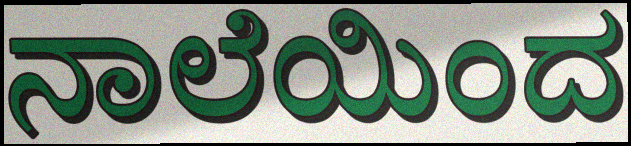
ನಾಲೆಯಿಂದ